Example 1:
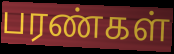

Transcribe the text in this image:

பரண்கள்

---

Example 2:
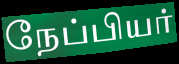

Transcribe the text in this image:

நேப்பியர்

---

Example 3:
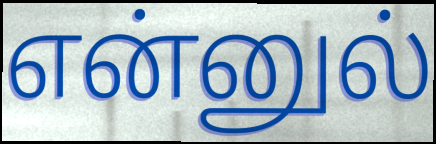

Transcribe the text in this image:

என்னுல்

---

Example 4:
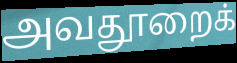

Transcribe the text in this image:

அவதூறைக்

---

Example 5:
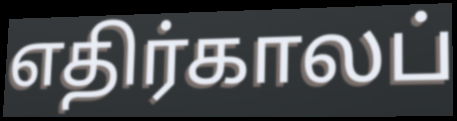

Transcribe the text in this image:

எதிர்காலப்